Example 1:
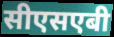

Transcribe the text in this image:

सीएसएबी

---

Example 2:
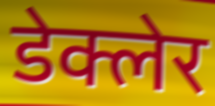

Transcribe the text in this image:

डेक्लेर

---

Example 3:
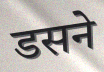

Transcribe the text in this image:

डसने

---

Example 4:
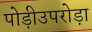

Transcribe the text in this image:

पोड़ीउपरोड़ा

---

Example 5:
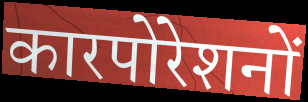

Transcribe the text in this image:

कारपोरेशनों